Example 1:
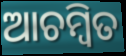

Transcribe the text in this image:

ଆଚମ୍ବିତ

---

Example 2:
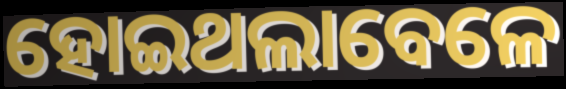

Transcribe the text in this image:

ହୋଇଥଲାବେଳେ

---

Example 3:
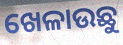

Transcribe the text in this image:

ଖେଳାଉଛୁ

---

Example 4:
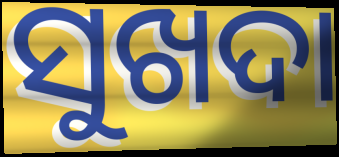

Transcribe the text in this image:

ସୁଖଦା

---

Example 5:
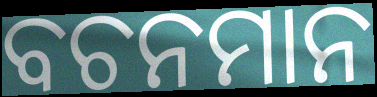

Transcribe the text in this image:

ବଚନମାନ